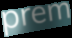
prem